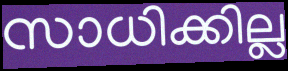
സാധിക്കില്ല